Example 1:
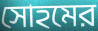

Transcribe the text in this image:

সোহমের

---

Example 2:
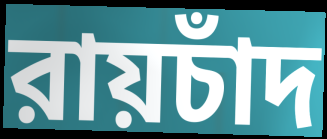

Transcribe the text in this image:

রায়চাঁদ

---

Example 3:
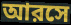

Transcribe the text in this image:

আরসে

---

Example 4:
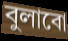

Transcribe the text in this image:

বুলাবো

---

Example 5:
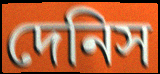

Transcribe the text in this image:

দেনিস